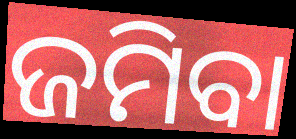
ଜମିବା